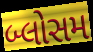
બ્લોસમ